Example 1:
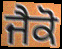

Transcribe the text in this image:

ਜੈਕੋ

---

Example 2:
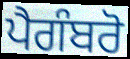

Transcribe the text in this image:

ਪੈਗੰਬਰੋ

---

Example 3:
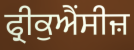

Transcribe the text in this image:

ਫ੍ਰੀਕੁਐਂਸੀਜ਼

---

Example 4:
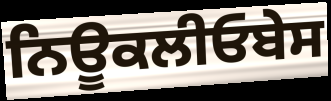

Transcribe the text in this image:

ਨਿਊਕਲੀਓਬੇਸ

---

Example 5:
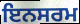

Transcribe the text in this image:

ਇਨਸਰਮ